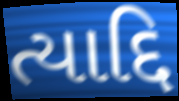
ત્યાદ્દિ